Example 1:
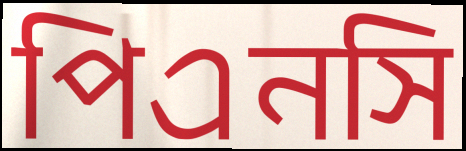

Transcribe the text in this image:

পিএনসি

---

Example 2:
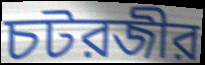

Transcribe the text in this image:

চটরজীর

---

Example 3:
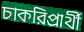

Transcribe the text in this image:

চাকরিপ্রার্থী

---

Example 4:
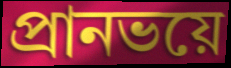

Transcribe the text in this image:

প্রানভয়ে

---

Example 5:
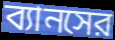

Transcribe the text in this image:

ব্যানসের